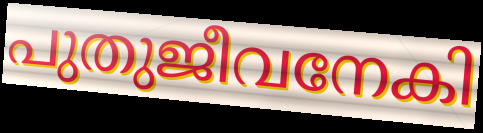
പുതുജീവനേകി